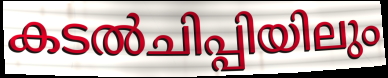
കടൽചിപ്പിയിലും